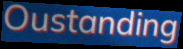
Oustanding